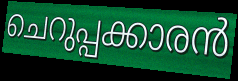
ചെറുപ്പക്കാരൻ